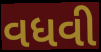
વધવી